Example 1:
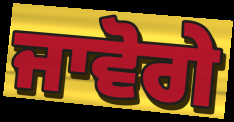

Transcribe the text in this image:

ਜਾਵੋਗੇ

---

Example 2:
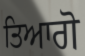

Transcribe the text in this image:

ਤਿਆਗੋ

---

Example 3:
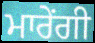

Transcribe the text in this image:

ਮਾਰੇਂਗੀ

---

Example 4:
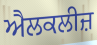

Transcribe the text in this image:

ਐਲਕਲੀਜ਼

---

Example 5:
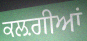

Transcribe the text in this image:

ਕਲ਼ਗੀਆਂ